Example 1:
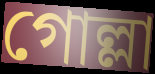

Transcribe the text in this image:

গোল্লা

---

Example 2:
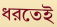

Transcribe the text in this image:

ধরতেই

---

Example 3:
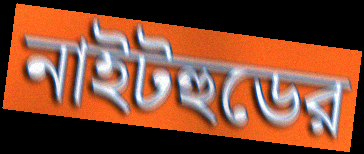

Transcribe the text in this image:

নাইটহুডের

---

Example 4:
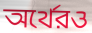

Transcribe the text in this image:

অর্থেরও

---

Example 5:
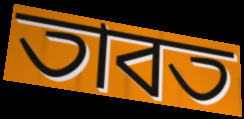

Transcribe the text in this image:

তাবত